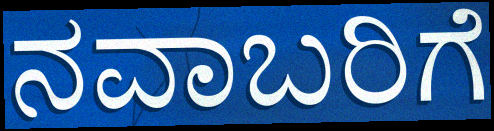
ನವಾಬರಿಗೆ